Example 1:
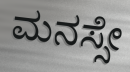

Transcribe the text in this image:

ಮನಸ್ಸೇ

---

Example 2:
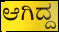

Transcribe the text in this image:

ಆಗಿದ್ದ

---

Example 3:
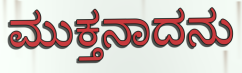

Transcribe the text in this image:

ಮುಕ್ತನಾದನು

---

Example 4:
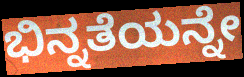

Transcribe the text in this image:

ಭಿನ್ನತೆಯನ್ನೇ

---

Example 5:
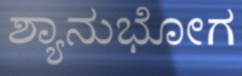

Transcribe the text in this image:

ಶ್ಯಾನುಭೋಗ